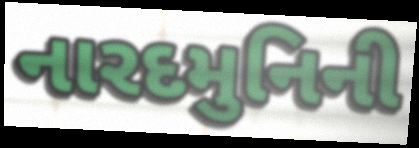
નારદમુનિની